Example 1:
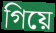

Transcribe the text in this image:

গিয়ে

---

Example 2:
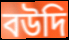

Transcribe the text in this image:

বউদি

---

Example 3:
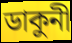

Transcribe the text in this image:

ডাকুনী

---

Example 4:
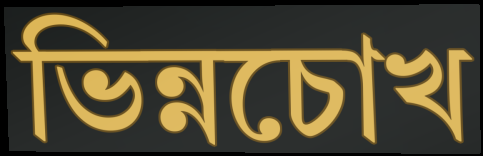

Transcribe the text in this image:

ভিন্নচোখ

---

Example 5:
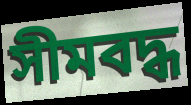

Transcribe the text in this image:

সীমবদ্ধ